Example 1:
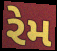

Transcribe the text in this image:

રેમ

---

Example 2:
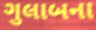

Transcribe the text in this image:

ગુલાબના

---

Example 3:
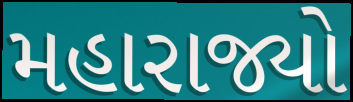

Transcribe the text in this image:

મહારાજ્યો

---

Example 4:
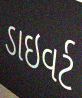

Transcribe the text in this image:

ડાઇવર્ટ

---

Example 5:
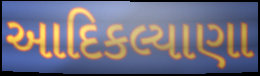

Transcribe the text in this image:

આદિકલ્યાણા